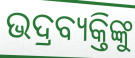
ଭଦ୍ରବ୍ୟକ୍ତିଙ୍କୁ